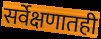
सर्वेक्षणातही